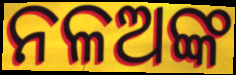
ନଳଅଙ୍କ